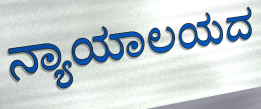
ನ್ಯಾಯಾಲಯದ